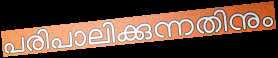
പരിപാലിക്കുന്നതിനും